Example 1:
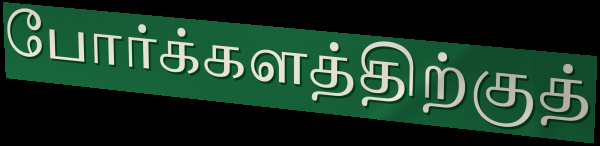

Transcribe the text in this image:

போர்க்களத்திற்குத்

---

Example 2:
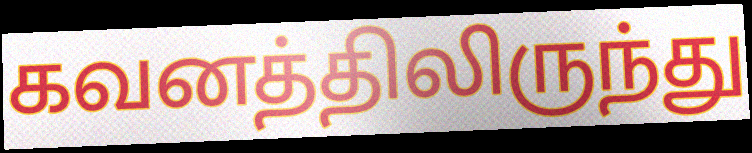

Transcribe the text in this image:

கவனத்திலிருந்து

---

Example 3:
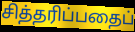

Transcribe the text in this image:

சித்தரிப்பதைப்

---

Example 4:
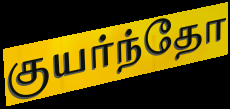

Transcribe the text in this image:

குயர்ந்தோ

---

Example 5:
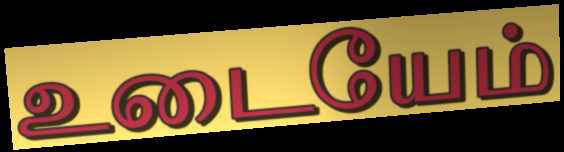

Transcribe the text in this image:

உடையேம்